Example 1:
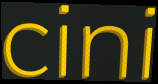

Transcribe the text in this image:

cini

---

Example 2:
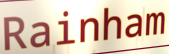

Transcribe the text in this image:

Rainham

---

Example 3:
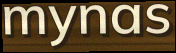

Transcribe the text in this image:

mynas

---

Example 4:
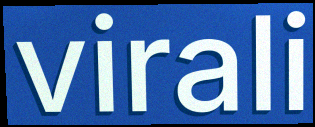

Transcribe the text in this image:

virali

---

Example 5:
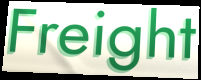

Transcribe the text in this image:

Freight